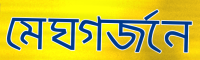
মেঘগর্জনে